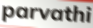
parvathi